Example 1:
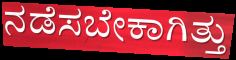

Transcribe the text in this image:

ನಡೆಸಬೇಕಾಗಿತ್ತು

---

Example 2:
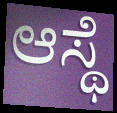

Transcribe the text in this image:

ಆಸ್ಥೆ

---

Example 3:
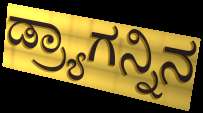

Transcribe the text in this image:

ಡ್ರ್ಯಾಗನ್ನಿನ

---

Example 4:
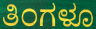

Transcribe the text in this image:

ತಿಂಗಳೂ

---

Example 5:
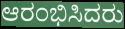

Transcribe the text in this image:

ಆರಂಭಿಸಿದರು